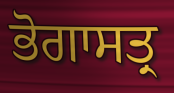
ਭੋਗਾਸਤ੍ਰ